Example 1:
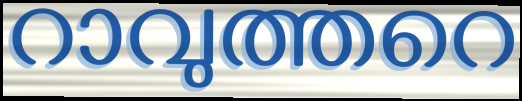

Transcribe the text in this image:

റാവുത്തറെ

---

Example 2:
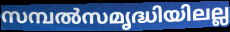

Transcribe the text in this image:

സമ്പൽസമൃദ്ധിയിലല്ല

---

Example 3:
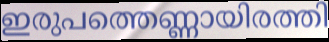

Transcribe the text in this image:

ഇരുപത്തെണ്ണായിരത്തി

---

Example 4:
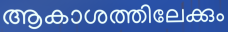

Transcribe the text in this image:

ആകാശത്തിലേക്കും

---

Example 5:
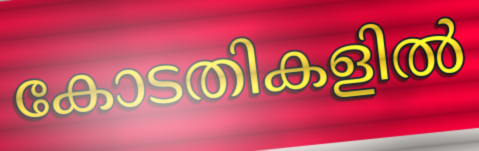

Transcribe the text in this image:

കോടതികളിൽ